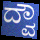
ದ್ವೌ